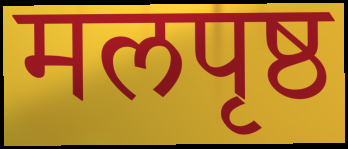
मलपृष्ठ